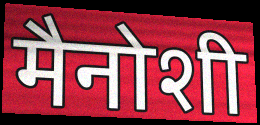
मैनोशी